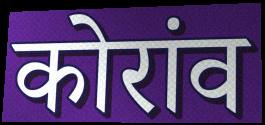
कोरांव